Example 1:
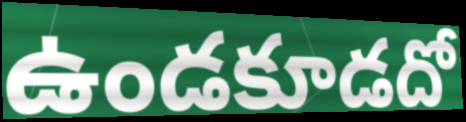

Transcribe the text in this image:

ఉండకూడదో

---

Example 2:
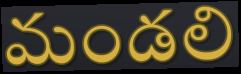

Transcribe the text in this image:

మండలి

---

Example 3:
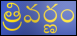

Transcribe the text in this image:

త్రివర్ణం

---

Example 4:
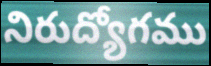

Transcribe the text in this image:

నిరుద్యోగము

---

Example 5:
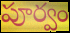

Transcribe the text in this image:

పూర్వం